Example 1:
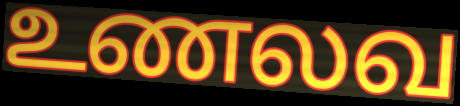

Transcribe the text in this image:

உணலவ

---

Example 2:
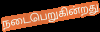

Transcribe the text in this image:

நடைபெறுகின்றது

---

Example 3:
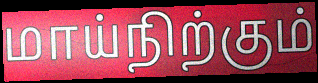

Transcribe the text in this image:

மாய்நிற்கும்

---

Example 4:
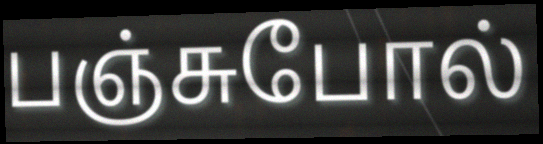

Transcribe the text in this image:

பஞ்சுபோல்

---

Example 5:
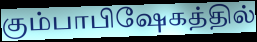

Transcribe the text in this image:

கும்பாபிஷேகத்தில்